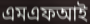
এমএফআই